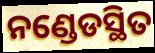
ନଣ୍ଡେଡସ୍ଥିତ